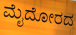
ಮೈದೋರದ